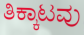
ತಿಕ್ಕಾಟವು